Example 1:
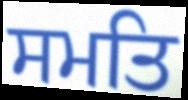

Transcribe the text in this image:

ਸਮਤਿ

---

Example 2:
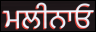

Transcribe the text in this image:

ਮਲੀਨਾਓ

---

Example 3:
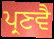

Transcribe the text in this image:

ਪ੍ਰਣਵੈ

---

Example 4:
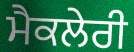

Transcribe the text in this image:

ਮੈਕਲੇਰੀ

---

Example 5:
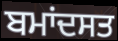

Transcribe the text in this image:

ਬਮਾਂਦਸਤ